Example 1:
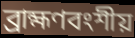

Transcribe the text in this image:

ব্রাহ্মণবংশীয়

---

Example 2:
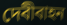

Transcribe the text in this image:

দেবীবাহন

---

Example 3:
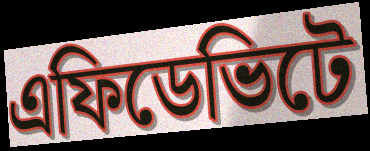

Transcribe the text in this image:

এফিডেভিটে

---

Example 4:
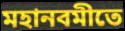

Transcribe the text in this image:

মহানবমীতে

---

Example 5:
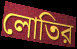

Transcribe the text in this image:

লোতির